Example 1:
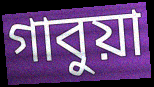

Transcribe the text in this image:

গাবুয়া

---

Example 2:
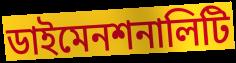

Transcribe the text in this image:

ডাইমেনশনালিটি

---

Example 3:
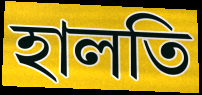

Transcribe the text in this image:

হালতি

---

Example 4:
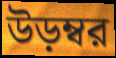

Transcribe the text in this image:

উড়ম্বর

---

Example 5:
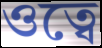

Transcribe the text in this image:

ওত্বে